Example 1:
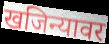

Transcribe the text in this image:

खजिन्यावर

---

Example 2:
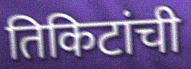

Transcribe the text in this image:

तिकिटांची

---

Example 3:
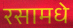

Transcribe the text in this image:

रसामधे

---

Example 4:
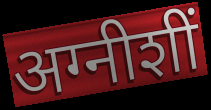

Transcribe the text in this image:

अग्नीशीं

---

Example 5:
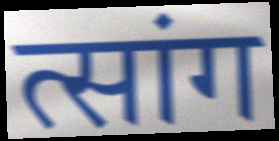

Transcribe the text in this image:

त्सांग